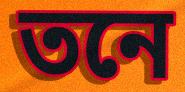
তনে